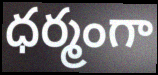
ధర్మంగా